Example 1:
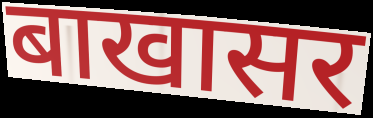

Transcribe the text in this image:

बाखासर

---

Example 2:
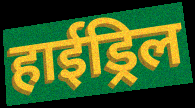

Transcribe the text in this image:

हाईड्रिल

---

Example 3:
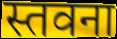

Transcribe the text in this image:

स्तवना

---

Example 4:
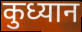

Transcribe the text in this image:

कुध्यान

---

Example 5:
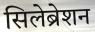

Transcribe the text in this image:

सिलेब्रेशन